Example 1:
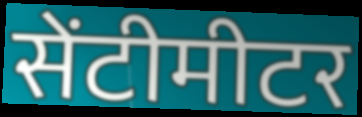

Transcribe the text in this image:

सेंटीमीटर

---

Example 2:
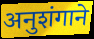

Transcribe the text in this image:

अनुशंगाने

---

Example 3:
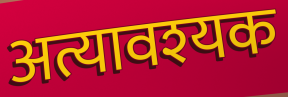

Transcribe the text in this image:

अत्यावश्‍यक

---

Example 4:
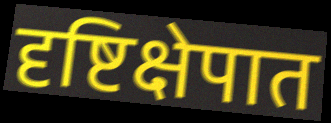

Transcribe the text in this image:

दृष्टिक्षेपात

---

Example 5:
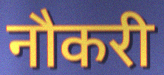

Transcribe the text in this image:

नौकरी